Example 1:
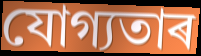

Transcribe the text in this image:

যোগ্যতাৰ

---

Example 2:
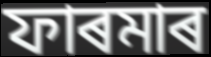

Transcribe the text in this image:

ফাৰমাৰ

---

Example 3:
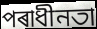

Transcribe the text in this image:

পৰাধীনতা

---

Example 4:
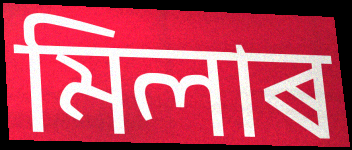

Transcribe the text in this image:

মিলাৰ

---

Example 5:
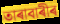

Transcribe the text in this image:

তাৰাবাৰীৰ